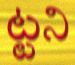
ట్టని